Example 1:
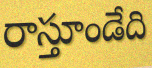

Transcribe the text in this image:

రాస్తూండేది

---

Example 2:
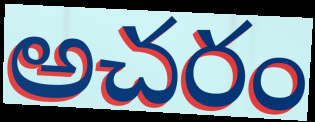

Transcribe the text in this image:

అచరం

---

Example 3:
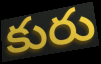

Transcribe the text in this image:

కురు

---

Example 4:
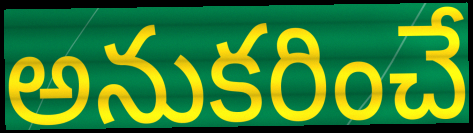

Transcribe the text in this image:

అనుకరించే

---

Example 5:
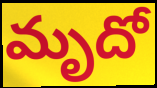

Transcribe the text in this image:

మృదో